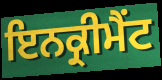
ਇਨਕ੍ਰੀਮੈਂਟ